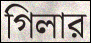
গিলার